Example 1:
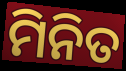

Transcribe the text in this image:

ମିନିତ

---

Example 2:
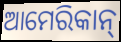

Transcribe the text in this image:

ଆମେରିକାନ୍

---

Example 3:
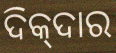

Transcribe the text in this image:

ଦିକ୍‍ଦାର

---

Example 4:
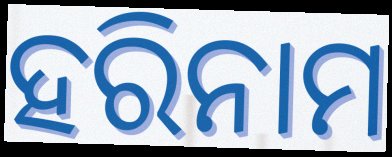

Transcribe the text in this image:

ହରିନାମ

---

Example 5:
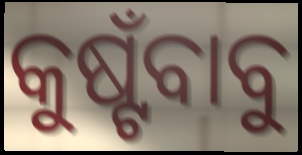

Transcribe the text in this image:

କୁଷ୍ଟଁବାବୁ